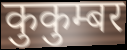
कुकुम्बर